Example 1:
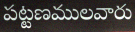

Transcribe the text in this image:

పట్టణములవారు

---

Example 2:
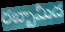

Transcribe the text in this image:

రబ్బామీద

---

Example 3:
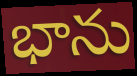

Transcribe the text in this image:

భాను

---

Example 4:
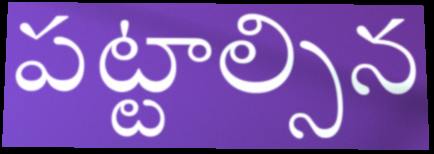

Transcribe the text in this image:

పట్టాల్సిన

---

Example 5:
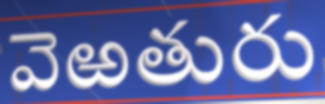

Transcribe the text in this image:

వెఱతురు